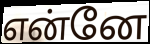
என்னே